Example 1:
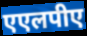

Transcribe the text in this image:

एएलपीए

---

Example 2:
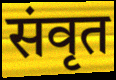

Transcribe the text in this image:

संवृत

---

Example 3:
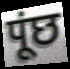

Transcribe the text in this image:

पूंछ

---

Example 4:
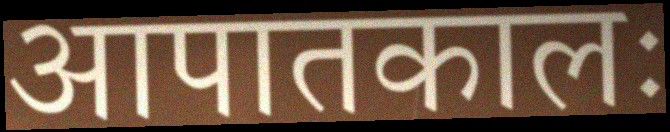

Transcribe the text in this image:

आपातकालः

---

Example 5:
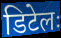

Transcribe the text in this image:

डिटेलः